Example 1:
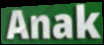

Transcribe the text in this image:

Anak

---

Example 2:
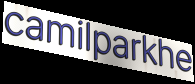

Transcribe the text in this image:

camilparkhe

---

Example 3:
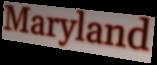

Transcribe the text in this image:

Maryland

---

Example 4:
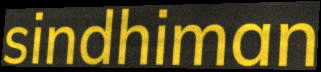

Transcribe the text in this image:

sindhiman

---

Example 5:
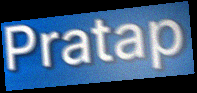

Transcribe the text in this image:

Pratap